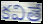
కవితే